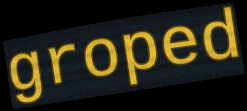
groped